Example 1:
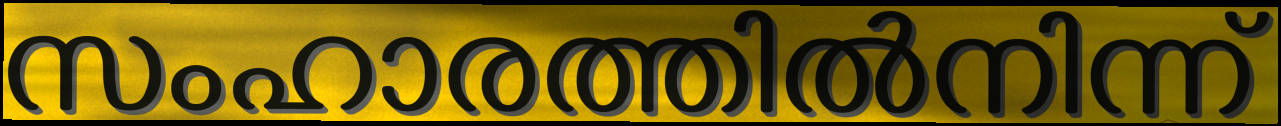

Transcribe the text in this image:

സംഹാരത്തിൽനിന്ന്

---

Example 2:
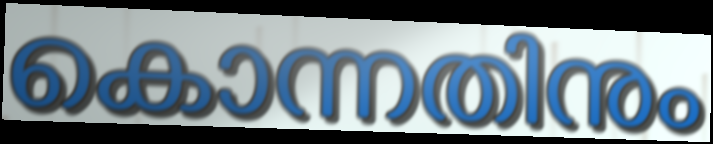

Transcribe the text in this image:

കൊന്നതിനും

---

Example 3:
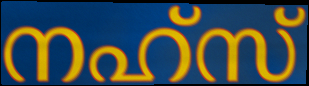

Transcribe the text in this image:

നഹ്സ്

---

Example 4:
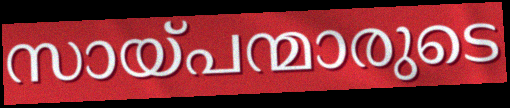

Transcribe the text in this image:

സായ്പന്മാരുടെ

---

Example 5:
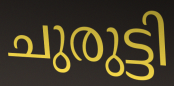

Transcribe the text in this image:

ചുരുട്ടി